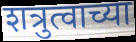
शत्रुत्वाच्या